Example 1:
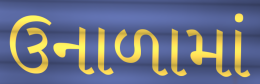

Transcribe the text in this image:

ઉનાળામાં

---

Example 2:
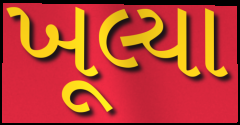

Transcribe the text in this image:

ખૂલ્યા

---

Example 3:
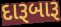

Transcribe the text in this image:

દારૂબારૂ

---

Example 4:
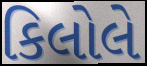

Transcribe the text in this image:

કિલોલે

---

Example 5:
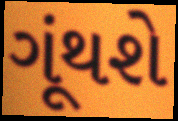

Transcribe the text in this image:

ગૂંથશે